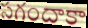
సగందాకా